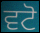
ਵਟੋ